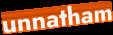
unnatham